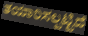
ತಯಾರಿಸಲ್ಪಟ್ಟಿದೆ